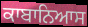
ਕਾਬਾਨਿਆਸ